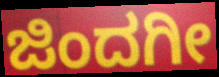
ಜಿಂದಗೀ